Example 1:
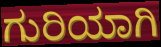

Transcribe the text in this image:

ಗುರಿಯಾಗಿ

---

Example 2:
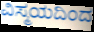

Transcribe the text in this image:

ವಿಸ್ಮಯದಿಂದ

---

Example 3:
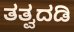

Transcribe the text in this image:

ತತ್ವದಡಿ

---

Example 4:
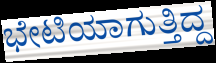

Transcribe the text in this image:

ಭೇಟಿಯಾಗುತ್ತಿದ್ದ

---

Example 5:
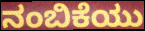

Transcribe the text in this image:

ನಂಬಿಕೆಯು